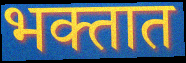
भक्तात